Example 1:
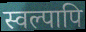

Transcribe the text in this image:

स्वल्पापि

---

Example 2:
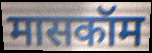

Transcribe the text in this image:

मासकॉम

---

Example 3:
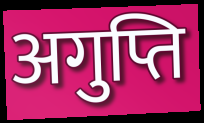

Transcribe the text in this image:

अगुप्ति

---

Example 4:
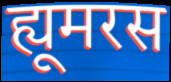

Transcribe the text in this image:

ह्यूमरस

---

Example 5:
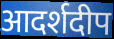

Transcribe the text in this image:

आदर्शदीप